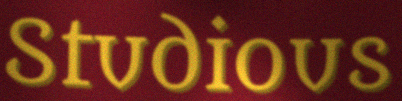
Studious